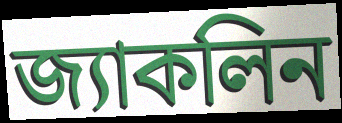
জ্যাকলিন